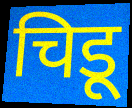
चिडू